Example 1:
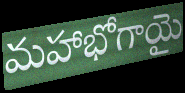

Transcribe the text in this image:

మహాభోగాయై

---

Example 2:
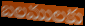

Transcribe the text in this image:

బలములకు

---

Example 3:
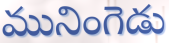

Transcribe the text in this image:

మునింగెడు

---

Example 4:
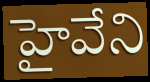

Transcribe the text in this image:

హైవేని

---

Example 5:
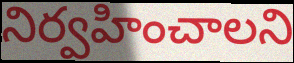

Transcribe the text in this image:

నిర్వహించాలని